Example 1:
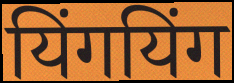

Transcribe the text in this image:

यिंगयिंग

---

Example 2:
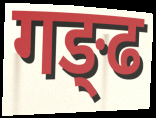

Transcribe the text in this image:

गङ्ढ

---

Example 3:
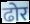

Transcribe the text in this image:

ढोर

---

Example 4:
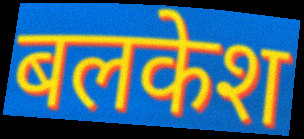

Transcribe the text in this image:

बलकेश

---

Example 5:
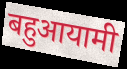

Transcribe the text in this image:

बहुआयामी